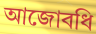
আজোবধি